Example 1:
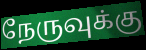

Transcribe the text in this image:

நேருவுக்கு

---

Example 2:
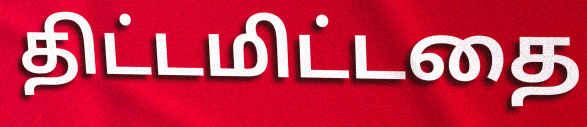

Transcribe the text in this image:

திட்டமிட்டதை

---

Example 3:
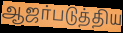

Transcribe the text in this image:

ஆஜர்படுத்திய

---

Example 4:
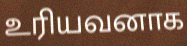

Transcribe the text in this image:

உரியவனாக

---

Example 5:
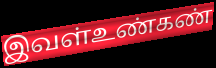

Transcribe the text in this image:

இவள்உண்கண்